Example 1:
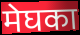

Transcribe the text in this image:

मेघका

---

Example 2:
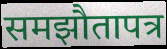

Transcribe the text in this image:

समझौतापत्र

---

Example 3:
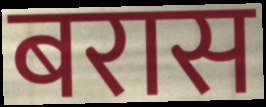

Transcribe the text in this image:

बरास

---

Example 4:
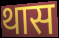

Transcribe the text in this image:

थास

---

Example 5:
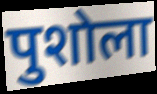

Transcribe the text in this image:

पुशोला